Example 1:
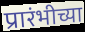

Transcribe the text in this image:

प्रारंभीच्या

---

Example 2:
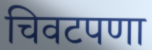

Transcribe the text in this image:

चिवटपणा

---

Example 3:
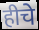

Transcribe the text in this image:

हीचे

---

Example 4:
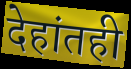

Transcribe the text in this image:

देहांतही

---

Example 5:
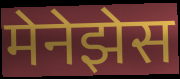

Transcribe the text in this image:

मेनेझेस